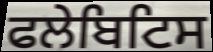
ਫਲੇਬਿਟਿਸ